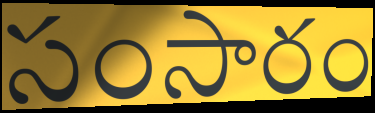
సంసారం